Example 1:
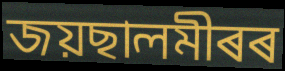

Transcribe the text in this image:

জয়ছালমীৰৰ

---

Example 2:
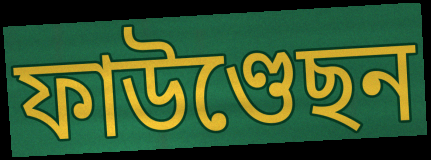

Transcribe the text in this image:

ফাউণ্ডেছন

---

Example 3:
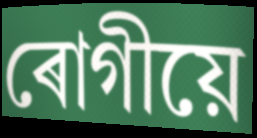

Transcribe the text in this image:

ৰোগীয়ে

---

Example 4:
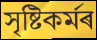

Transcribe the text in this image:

সৃষ্টিকৰ্মৰ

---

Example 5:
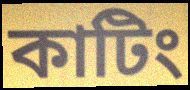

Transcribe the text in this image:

কাটিং